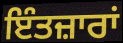
ਇੰਤਜ਼ਾਰਾਂ